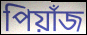
পিয়াঁজ